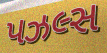
પઝલ્સ